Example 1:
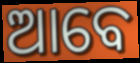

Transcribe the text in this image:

ଆବେ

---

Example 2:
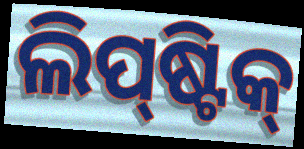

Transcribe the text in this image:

ଲିପ୍‍ଷ୍ଟିକ୍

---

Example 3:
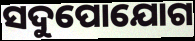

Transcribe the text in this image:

ସଦୁପୋଯୋଗ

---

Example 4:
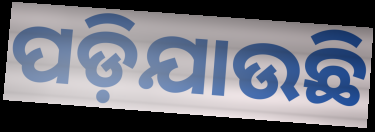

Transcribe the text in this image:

ପଡ଼ିଯାଉଛି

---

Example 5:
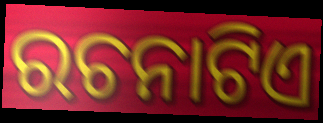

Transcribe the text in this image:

ରଚନାଟିଏ